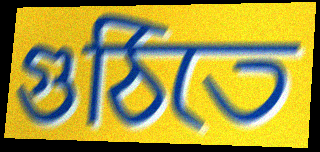
গুঠিতে